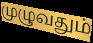
முழுவதும்